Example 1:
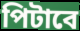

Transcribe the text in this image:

পিটাবে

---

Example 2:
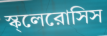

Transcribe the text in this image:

স্ক্লেরোসিস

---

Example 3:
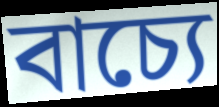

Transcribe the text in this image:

বাচ্যে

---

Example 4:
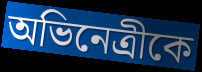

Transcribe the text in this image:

অভিনেত্রীকে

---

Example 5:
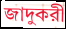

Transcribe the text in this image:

জাদুকরী